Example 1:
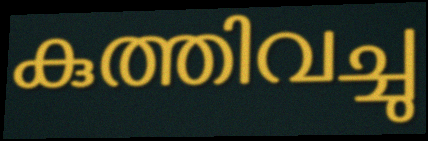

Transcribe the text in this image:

കുത്തിവച്ചു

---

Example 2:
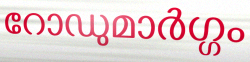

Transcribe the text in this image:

റോഡുമാർഗ്ഗം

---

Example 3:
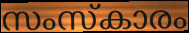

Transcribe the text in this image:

സംസ്‌കാരം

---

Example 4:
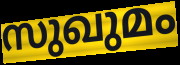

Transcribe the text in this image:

സുഖുമം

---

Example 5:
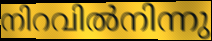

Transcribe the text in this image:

നിറവിൽനിന്നു